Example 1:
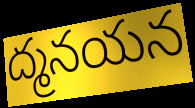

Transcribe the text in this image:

ద్మనయన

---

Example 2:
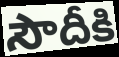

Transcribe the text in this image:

సౌదీకి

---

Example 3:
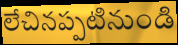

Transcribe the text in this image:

లేచినప్పటినుండి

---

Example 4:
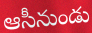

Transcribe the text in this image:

ఆసీనుండు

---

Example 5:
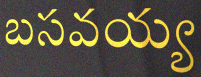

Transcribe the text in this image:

బసవయ్య